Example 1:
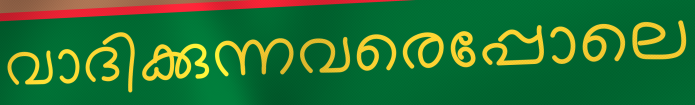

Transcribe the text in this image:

വാദിക്കുന്നവരെപ്പോലെ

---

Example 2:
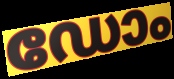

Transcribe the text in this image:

ഡോം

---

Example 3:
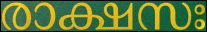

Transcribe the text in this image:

രാക്ഷസഃ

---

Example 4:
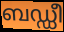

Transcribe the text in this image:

ബഡ്ഡീ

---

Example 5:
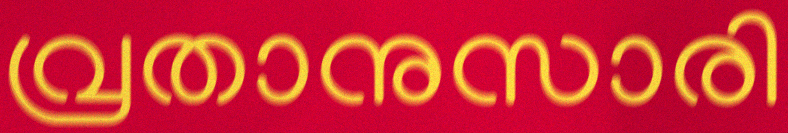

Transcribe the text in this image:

വ്രതാനുസാരി